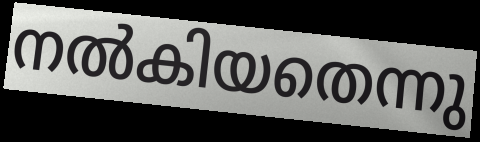
നൽകിയതെന്നു